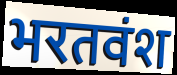
भरतवंश